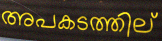
അപകടത്തില്